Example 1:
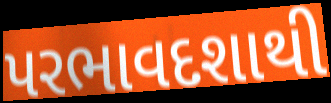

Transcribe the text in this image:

પરભાવદશાથી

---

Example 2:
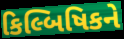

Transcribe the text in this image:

કિલ્બિષિકને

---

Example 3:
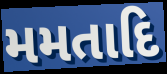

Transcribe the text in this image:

મમતાદિ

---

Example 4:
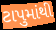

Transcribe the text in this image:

ટાપુમાંથી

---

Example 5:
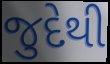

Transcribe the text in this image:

જુદેથી